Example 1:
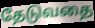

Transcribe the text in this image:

தேடுவதை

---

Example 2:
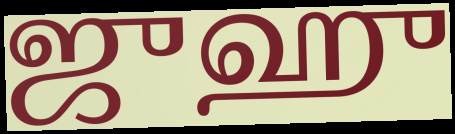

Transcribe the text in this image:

ஜுஹு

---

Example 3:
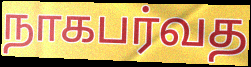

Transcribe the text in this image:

நாகபர்வத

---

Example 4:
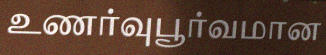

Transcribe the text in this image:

உணர்வுபூர்வமான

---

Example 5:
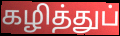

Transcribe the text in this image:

கழித்துப்